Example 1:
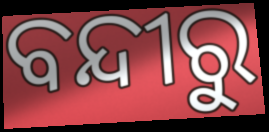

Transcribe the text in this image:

ବନ୍ଦୀରୁ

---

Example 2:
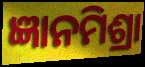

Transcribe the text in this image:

ଜ୍ଞାନମିଶ୍ରା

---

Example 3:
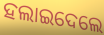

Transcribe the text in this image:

ହଲାଇଦେଲେ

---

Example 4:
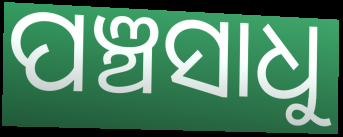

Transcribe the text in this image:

ପଞ୍ଚସାଧୁ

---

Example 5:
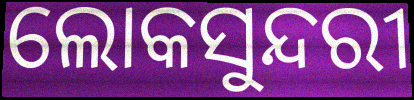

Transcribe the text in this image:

ଲୋକସୁନ୍ଦରୀ